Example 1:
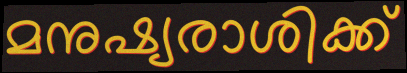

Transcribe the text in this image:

മനുഷ്യരാശിക്ക്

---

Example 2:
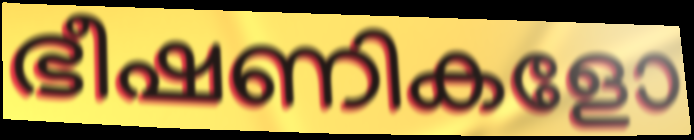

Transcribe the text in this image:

ഭീഷണികളോ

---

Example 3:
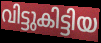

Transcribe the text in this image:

വിട്ടുകിട്ടിയ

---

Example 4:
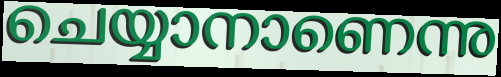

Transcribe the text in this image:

ചെയ്യാനാണെന്നു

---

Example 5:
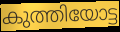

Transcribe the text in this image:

കുത്തിയോട്ട